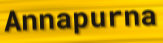
Annapurna